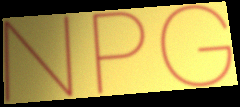
NPG